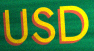
USD